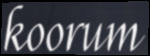
koorum